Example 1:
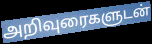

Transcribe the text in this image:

அறிவுரைகளுடன்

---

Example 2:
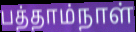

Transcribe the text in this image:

பத்தாம்நாள்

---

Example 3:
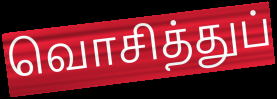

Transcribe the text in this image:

வொசித்துப்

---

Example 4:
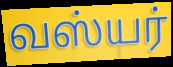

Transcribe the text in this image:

வஸ்யர்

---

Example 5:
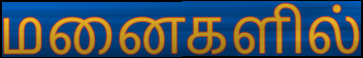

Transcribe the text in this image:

மனைகளில்